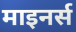
माइनर्स